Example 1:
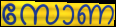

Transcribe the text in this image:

സോണ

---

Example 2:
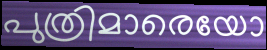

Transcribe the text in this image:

പുത്രിമാരെയോ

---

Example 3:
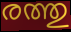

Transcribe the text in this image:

രത്തു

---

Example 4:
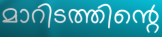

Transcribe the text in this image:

മാറിടത്തിന്റെ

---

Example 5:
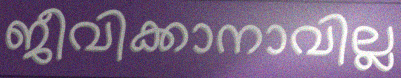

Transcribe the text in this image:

ജീവിക്കാനാവില്ല